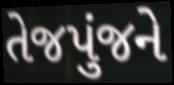
તેજપુંજને